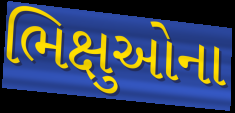
ભિક્ષુઓના